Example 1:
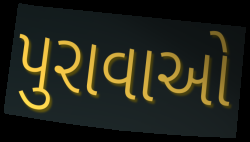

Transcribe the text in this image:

પુરાવાઓ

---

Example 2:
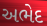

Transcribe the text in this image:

અભેદ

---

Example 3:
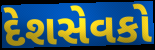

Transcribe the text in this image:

દેશસેવકો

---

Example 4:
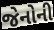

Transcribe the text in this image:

જેનોની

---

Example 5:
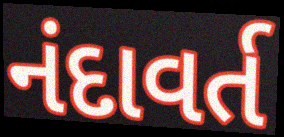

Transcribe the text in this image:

નંદાવર્ત